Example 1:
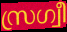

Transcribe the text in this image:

സ്രഗ്വീ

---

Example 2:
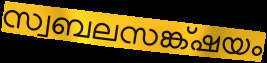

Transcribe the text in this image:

സ്വബലസങ്ക്ഷയം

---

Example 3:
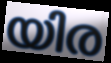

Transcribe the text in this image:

യിര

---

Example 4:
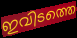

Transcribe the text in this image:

ഇവിടത്തെ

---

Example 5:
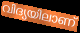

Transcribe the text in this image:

വിദ്യയിലാണ്